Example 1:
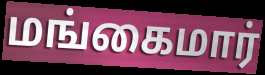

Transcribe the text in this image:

மங்கைமார்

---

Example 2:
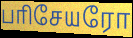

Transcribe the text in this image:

பரிசேயரோ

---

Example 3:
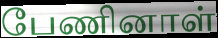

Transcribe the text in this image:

பேணினாள்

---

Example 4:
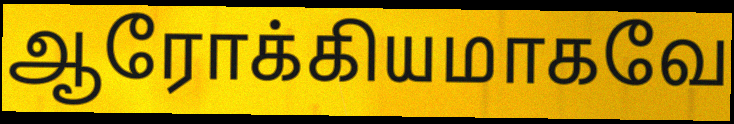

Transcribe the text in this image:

ஆரோக்கியமாகவே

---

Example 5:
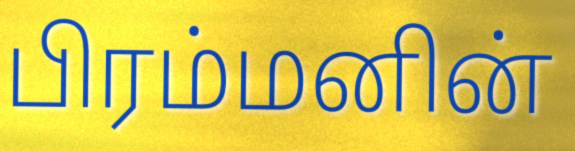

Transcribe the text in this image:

பிரம்மனின்